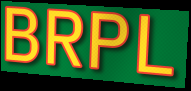
BRPL